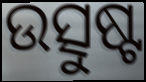
ଉତ୍ସୁଷ୍ଟ